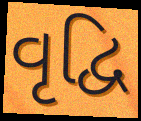
વૃદ્વિ